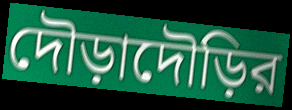
দৌড়াদৌড়ির